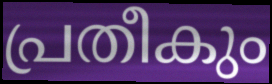
പ്രതീകും